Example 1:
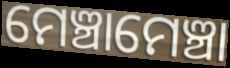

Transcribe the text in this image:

ମେଞ୍ଚାମେଞ୍ଚା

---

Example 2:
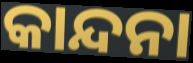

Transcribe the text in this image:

କାନ୍ଦନା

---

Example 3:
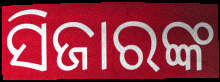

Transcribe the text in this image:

ସିଜାରଙ୍କ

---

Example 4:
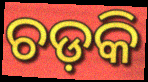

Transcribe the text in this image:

ଚଡ଼କି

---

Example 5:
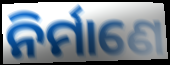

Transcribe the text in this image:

ନିର୍ମାଣେ